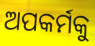
ଅପକର୍ମକୁ